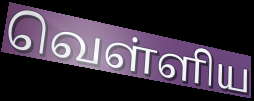
வெள்ளிய